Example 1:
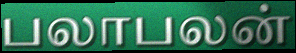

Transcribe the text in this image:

பலாபலன்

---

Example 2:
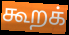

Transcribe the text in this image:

கூறக்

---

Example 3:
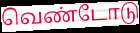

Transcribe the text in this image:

வெண்டோடு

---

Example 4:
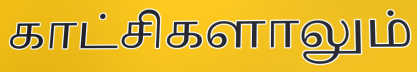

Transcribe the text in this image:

காட்சிகளாலும்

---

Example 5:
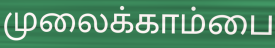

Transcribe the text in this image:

முலைக்காம்பை